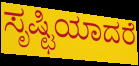
ಸೃಷ್ಟಿಯಾದರೆ